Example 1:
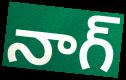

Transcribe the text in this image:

నాగ్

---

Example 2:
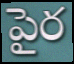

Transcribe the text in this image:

పైర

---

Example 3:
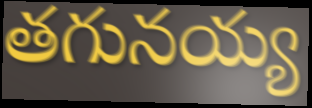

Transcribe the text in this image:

తగునయ్య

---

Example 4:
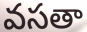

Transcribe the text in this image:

వసతా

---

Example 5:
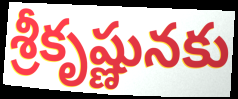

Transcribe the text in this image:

శ్రీకృష్ణునకు